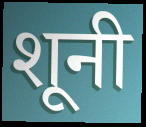
शूनी